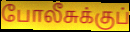
போலீசுக்குப்